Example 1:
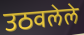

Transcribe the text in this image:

उठवलेले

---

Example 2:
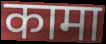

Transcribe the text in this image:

कामा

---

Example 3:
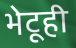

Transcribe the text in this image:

भेटूही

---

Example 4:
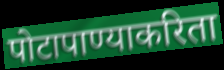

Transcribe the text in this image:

पोटापाण्याकरिता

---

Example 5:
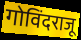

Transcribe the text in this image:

गोविंदराजू